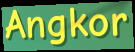
Angkor